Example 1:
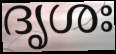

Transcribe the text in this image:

ദൃശഃ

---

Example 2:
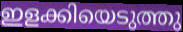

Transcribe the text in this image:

ഇളക്കിയെടുത്തു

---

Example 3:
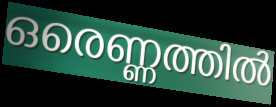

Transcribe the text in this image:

ഒരെണ്ണത്തിൽ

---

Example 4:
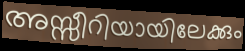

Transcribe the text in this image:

അസ്സീറിയായിലേക്കും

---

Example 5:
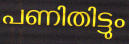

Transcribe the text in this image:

പണിതിട്ടും